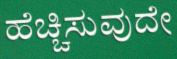
ಹೆಚ್ಚಿಸುವುದೇ